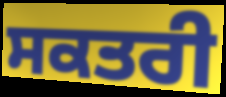
ਸਕਤਰੀ